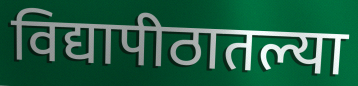
विद्यापीठातल्या